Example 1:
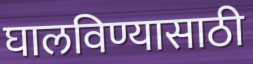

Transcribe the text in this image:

घालविण्यासाठी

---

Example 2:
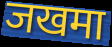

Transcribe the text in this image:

जखमा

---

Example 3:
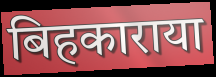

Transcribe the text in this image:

बिहकाराया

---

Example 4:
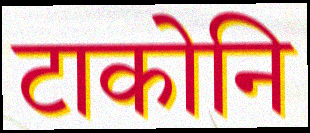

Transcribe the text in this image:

टाकोनि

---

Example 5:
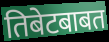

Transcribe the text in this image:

तिबेटबाबत